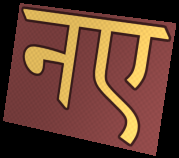
नए